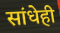
सांधेही